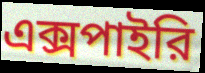
এক্সপাইরি